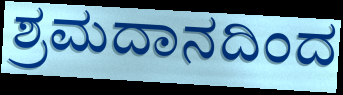
ಶ್ರಮದಾನದಿಂದ